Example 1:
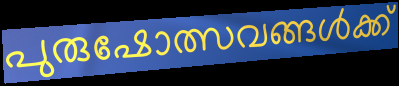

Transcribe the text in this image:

പുരുഷോത്സവങ്ങൾക്ക്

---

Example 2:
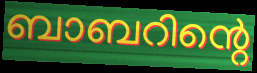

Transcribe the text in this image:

ബാബറിന്റെ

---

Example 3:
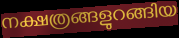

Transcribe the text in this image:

നക്ഷത്രങ്ങളുറങ്ങിയ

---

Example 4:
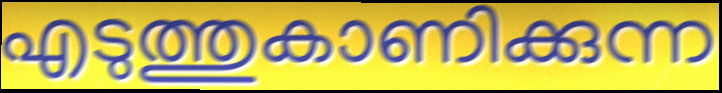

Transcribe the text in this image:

എടുത്തുകാണിക്കുന്ന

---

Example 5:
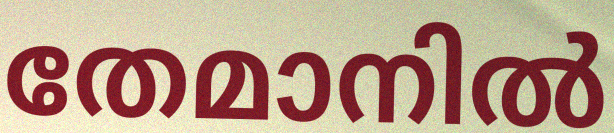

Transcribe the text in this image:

തേമാനിൽ